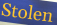
Stolen